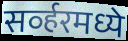
सर्व्हरमध्ये